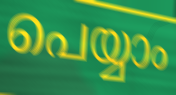
പെയ്യാം